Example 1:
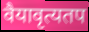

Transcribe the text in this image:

वैयावृत्यतप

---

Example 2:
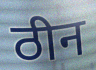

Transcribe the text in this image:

ठीन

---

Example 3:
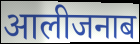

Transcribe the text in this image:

आलीजनाब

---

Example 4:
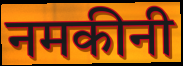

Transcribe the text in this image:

नमकीनी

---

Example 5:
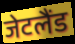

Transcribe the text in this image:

जेटलैंड